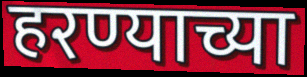
हरण्याच्या